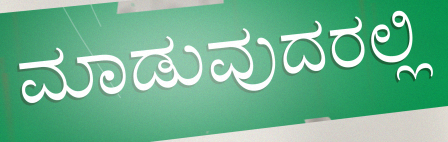
ಮಾಡುವುದರಲ್ಲಿ